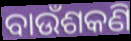
ବାଉଁଶକଣି